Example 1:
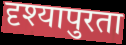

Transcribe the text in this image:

दृश्यापुरता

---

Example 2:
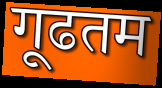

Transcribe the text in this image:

गूढतम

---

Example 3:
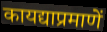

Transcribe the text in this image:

कायद्याप्रमाणें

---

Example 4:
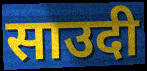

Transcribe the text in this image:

साउदी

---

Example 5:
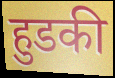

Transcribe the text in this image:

हुडकी